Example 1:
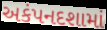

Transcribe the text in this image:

અકંપનદશામાં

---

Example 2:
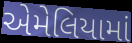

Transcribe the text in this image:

એમેલિયામાં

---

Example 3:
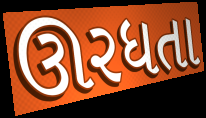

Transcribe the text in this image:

ઊરધતા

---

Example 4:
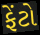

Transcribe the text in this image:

ફેંટો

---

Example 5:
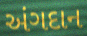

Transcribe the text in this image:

અંગદાન